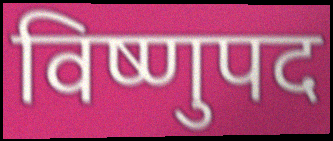
विष्णुपद